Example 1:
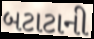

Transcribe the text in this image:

બટાટાની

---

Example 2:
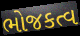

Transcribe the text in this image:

ભોજકત્વ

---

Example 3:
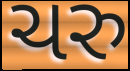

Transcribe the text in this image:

ચરુ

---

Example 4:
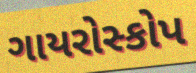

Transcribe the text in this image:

ગાયરોસ્કોપ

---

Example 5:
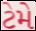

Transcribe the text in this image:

ટેમે